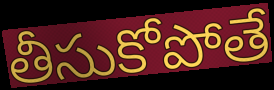
తీసుకోపోతే